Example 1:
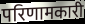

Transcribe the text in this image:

परिणामकारी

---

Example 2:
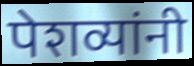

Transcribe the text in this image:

पेशव्यांनी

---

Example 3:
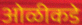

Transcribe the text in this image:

ओळीकडे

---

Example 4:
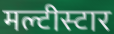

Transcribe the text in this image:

मल्टीस्टार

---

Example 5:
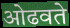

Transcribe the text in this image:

ओढवते